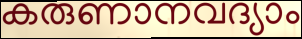
കരുണാനവദ്യാം